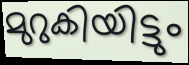
മുറുകിയിട്ടും